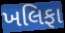
ખલિફા